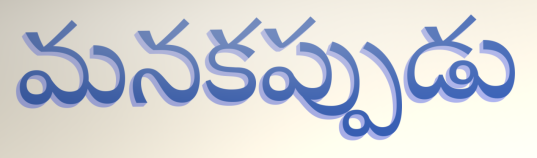
మనకప్పుడు